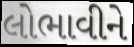
લોભાવીને